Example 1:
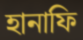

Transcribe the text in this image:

হানাফি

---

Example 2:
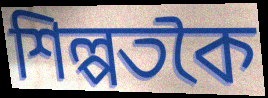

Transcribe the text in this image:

শিল্পতকৈ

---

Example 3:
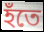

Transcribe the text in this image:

হঁতে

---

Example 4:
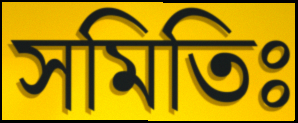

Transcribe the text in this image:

সমিতিঃ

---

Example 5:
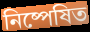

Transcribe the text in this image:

নিষ্পেষিত